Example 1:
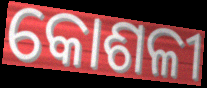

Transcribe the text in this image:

କୋଶଳୀ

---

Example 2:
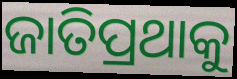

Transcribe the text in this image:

ଜାତିପ୍ରଥାକୁ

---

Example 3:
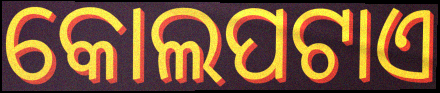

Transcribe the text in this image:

କୋଲପଟାଏ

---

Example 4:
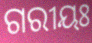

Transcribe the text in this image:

ଗରୀୟଃ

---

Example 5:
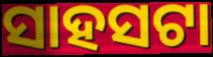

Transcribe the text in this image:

ସାହସଟା